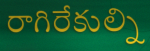
రాగిరేకుల్ని